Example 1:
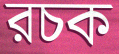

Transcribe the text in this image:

রচক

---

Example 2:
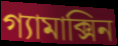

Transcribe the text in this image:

গ্যামাক্সিন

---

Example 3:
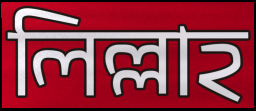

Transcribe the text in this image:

লিল্লাহ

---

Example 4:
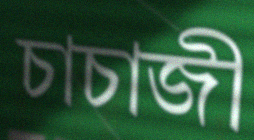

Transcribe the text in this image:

চাচাজী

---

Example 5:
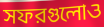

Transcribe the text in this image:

সফরগুলোও